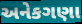
અનેકગણા